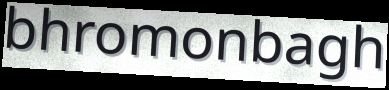
bhromonbagh